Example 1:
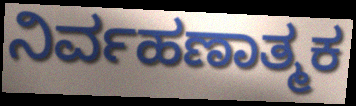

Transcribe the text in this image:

ನಿರ್ವಹಣಾತ್ಮಕ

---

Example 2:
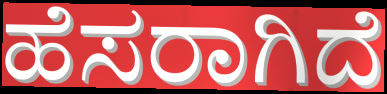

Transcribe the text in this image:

ಹೆಸರಾಗಿದೆ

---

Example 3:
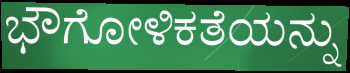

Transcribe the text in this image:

ಭೌಗೋಳಿಕತೆಯನ್ನು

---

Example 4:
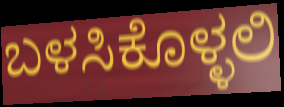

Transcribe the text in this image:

ಬಳಸಿಕೊಳ್ಳಲಿ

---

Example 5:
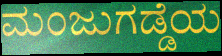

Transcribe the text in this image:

ಮಂಜುಗಡ್ಡೆಯ